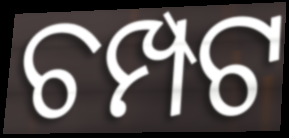
ଚମ୍ପଟ